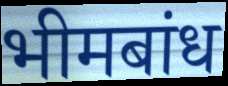
भीमबांध